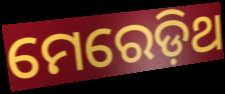
ମେରେଡ଼ିଥ